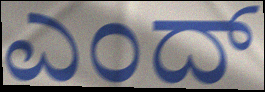
ಎಂದ್